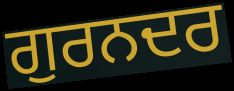
ਗੁਰਨਦਰ